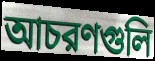
আচরণগুলি